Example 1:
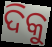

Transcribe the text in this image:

ଦିକୁ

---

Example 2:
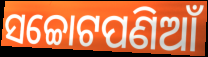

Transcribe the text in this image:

ସଚ୍ଚୋଟପଣିଆଁ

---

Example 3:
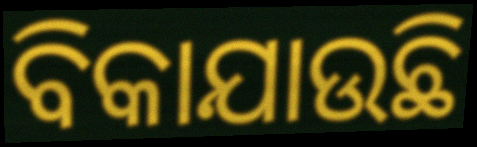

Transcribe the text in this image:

ବିକାଯାଉଛି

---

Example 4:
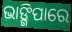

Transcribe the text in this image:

ଭାଙ୍ଗିପାରେ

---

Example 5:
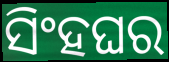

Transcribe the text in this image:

ସିଂହଘର